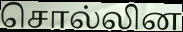
சொல்லின